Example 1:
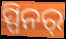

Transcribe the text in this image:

ସ୍ପିନର୍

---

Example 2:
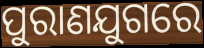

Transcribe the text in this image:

ପୁରାଣଯୁଗରେ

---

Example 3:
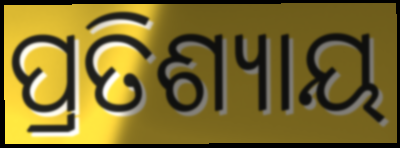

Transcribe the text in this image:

ପ୍ରତିଶ୍ୟାୟ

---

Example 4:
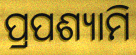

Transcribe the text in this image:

ପ୍ରପଶ୍ୟାମି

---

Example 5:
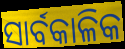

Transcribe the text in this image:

ସାର୍ବକାଳିକ